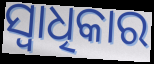
ସ୍ଵାଧିକାର